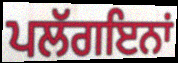
ਪਲੱਗਇਨਾਂ